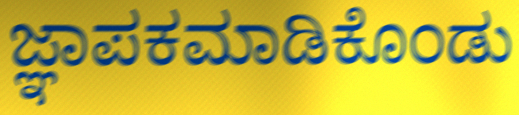
ಜ್ಞಾಪಕಮಾಡಿಕೊಂಡು